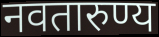
नवतारुण्य